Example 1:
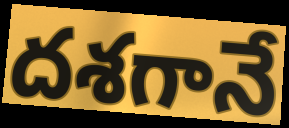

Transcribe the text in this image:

దశగానే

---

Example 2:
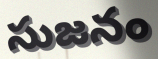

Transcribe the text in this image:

సుజనం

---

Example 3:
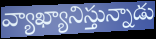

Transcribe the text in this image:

వ్యాఖ్యానిస్తున్నాడు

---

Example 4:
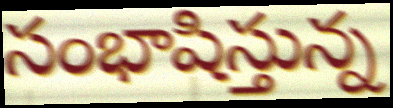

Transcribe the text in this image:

సంభాషిస్తున్న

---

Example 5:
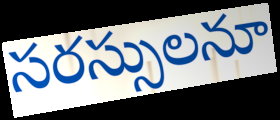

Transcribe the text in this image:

సరస్సులనూ